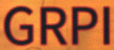
GRPI